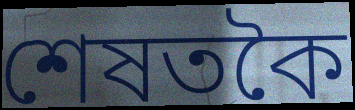
শেষতকৈ